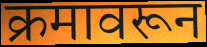
क्रमावरून